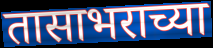
तासाभराच्या